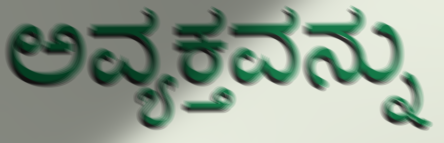
ಅವ್ಯಕ್ತವನ್ನು